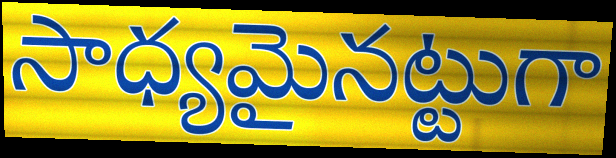
సాధ్యమైనట్టుగా